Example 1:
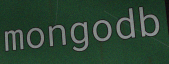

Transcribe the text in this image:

mongodb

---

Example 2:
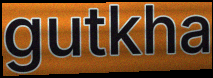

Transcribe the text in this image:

gutkha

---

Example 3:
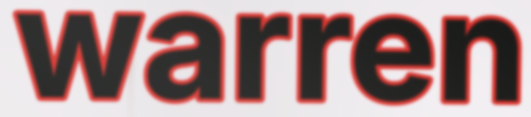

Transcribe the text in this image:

warren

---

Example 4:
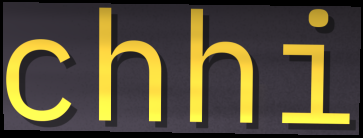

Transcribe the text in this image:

chhi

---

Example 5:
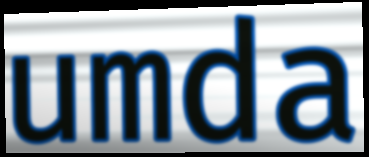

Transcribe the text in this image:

umda